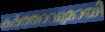
കർത്താവുമായി